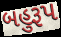
બહુરૂપ